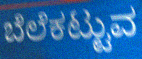
ಬೆಲೆಕಟ್ಟುವ